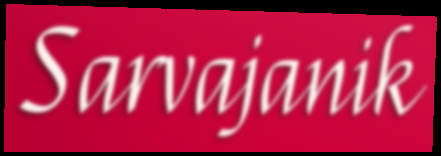
Sarvajanik